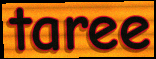
taree